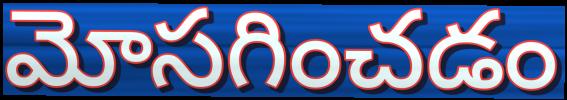
మోసగించడం